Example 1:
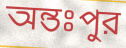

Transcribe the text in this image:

অন্তঃপুর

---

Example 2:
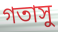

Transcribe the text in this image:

গতাসু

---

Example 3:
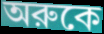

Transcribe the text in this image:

অরুকে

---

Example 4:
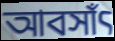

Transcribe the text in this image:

আবসাঁৎ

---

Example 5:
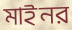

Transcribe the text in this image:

মাইনর